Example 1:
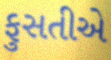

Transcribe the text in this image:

ફુસતીએ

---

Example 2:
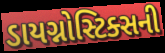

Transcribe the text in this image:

ડાયગ્નોસ્ટિક્સની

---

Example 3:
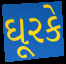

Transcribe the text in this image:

ઘૂરકે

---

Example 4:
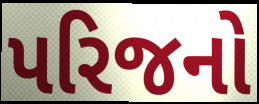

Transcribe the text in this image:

પરિજનો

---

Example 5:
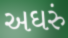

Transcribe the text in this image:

અઘરું